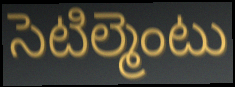
సెటిల్మెంటు